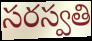
సరస్వతి